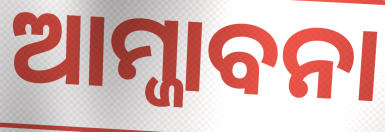
ଆମ୍ଜାବନା